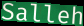
Salleh